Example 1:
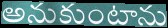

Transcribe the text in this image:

అనుకుంటాను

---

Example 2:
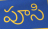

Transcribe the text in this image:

పూసి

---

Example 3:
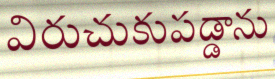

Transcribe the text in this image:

విరుచుకుపడ్డాను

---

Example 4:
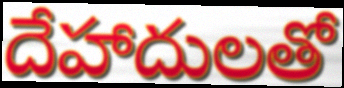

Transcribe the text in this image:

దేహాదులతో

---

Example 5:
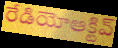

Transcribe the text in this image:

రేడియోఆక్టివ్